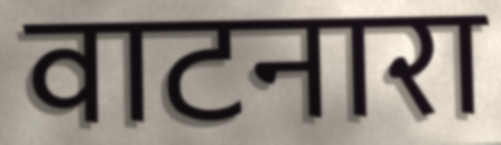
वाटनारा